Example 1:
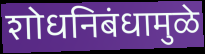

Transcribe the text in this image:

शोधनिबंधामुळे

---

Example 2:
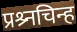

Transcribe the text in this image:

प्रश्र्नचिन्ह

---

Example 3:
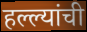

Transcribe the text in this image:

हल्ल्यांची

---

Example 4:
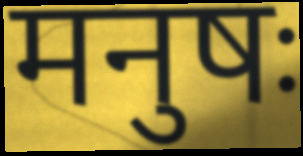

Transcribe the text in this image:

मनुषः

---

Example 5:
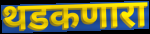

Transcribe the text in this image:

थडकणारा